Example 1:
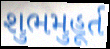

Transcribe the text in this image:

શુભમુહૂર્ત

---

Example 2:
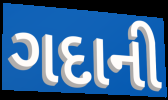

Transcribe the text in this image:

ગદાની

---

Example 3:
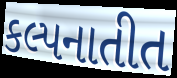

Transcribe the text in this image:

કલ્પનાતીત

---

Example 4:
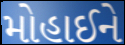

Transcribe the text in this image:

મોહાઈને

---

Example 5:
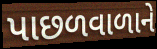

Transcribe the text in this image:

પાછળવાળાને